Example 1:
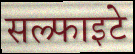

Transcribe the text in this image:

सल्फाइटे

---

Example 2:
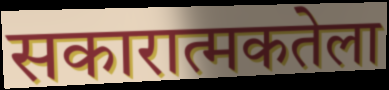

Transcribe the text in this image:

सकारात्मकतेला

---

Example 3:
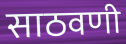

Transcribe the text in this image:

साठवणी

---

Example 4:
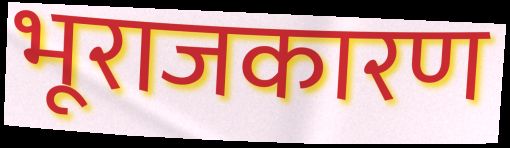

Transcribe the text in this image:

भूराजकारण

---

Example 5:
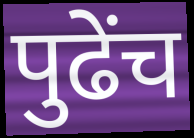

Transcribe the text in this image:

पुढेंच